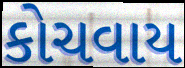
કોચવાય